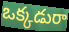
ఒక్కడురా